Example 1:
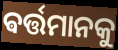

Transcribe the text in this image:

ଵର୍ତ୍ତମାନକୁ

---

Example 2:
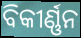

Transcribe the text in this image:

ବିକୀର୍ଣ୍ଣନ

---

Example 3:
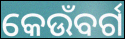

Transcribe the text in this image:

କେଉଁବର୍ଗ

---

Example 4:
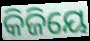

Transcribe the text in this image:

କିଜିୟେ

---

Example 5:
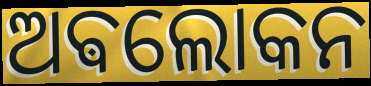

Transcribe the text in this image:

ଅଵଲୋକନ